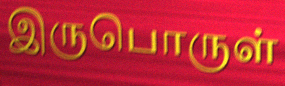
இருபொருள்